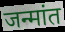
जन्मांत